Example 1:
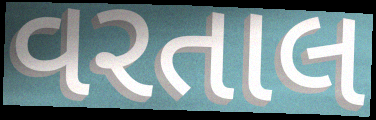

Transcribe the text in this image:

વરતાલ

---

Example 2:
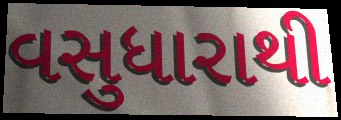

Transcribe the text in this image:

વસુધારાથી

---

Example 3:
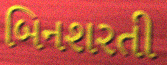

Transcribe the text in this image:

બિનશરતી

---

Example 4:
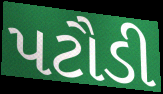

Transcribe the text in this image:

પટૌડી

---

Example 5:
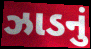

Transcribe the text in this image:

ઝાડનું